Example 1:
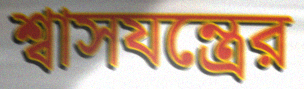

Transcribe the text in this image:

শ্বাসযন্ত্রের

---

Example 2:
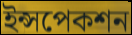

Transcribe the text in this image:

ইন্সপেকশন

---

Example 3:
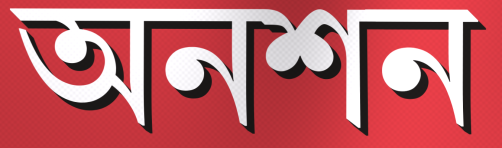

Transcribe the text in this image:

অনশন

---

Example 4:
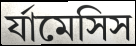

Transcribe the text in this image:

র্যামেসিস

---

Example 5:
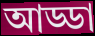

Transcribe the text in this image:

আড্ডা